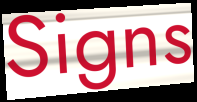
Signs